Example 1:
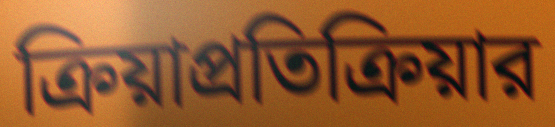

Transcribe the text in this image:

ক্রিয়াপ্রতিক্রিয়ার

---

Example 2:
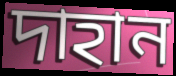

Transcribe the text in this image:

দাহান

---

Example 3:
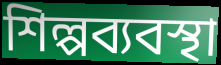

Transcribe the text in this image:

শিল্পব্যবস্থা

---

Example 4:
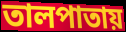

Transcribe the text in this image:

তালপাতায়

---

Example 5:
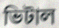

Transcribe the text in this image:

ভিটাল